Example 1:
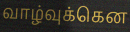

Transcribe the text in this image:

வாழ்வுக்கென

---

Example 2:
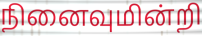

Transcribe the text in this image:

நினைவுமின்றி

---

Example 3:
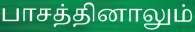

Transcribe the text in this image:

பாசத்தினாலும்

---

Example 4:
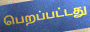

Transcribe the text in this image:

பெறப்பட்டது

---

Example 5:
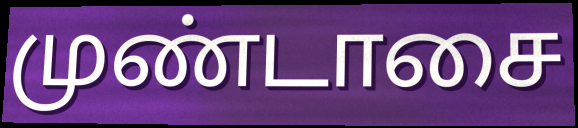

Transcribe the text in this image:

முண்டாசை